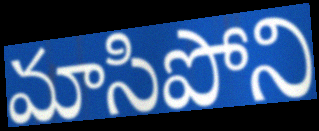
మాసిపోని